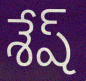
శేష్